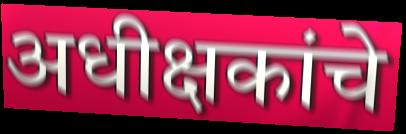
अधीक्षकांचे